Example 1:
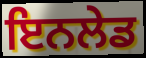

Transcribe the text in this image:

ਇਨਲੇਡ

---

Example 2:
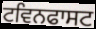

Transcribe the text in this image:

ਟਵਿਨਫਾਸਟ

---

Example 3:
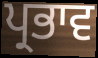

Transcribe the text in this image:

ਪ੍ਰਭਾਵ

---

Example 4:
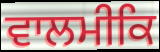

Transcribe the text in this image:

ਵਾਲਮੀਕਿ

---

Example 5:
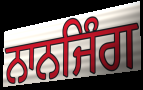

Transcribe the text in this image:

ਨਾਨਜਿੰਗ